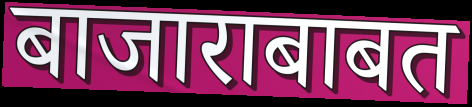
बाजाराबाबत